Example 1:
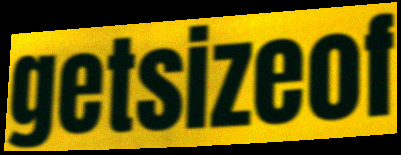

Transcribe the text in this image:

getsizeof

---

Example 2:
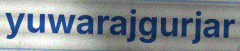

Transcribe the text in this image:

yuwarajgurjar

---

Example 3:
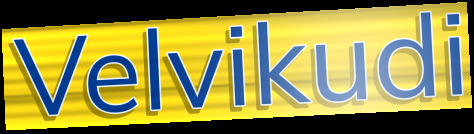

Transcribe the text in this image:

Velvikudi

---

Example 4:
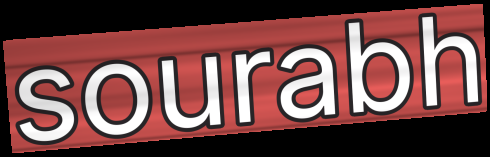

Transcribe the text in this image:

sourabh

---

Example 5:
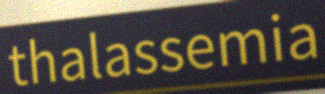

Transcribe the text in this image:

thalassemia